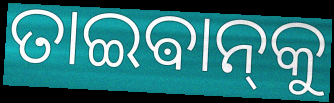
ତାଇଵାନ୍‌କୁ